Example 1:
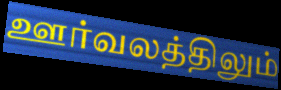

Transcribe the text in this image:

ஊர்வலத்திலும்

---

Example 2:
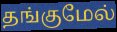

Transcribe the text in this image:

தங்குமேல்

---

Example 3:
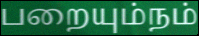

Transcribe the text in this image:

பறையும்நம்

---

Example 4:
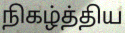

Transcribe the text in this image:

நிகழ்த்திய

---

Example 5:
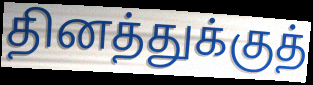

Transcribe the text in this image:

தினத்துக்குத்